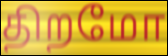
திறமோ